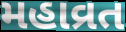
મહાવ્રત